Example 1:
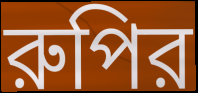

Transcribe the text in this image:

রুপির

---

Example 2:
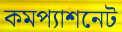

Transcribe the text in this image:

কমপ্যাশনেট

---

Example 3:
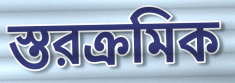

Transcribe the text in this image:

স্তরক্রমিক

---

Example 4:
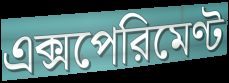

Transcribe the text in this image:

এক্সপেরিমেণ্ট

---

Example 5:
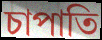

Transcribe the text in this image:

চাপাতি